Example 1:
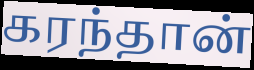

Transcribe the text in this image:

கரந்தான்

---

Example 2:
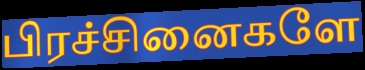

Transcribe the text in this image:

பிரச்சினைகளே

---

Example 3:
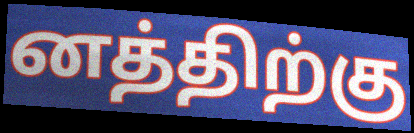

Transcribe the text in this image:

னத்திற்கு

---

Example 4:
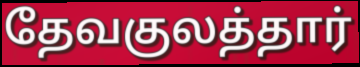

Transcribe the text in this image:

தேவகுலத்தார்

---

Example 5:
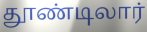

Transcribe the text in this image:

தூண்டிலார்